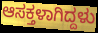
ಆಸಕ್ತಳಾಗಿದ್ದಳು